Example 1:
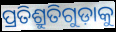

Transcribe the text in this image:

ପ୍ରତିଶ୍ରୁତିଗୁଡ଼ାକୁ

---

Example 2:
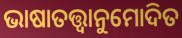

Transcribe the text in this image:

ଭାଷାତତ୍ତ୍ୱାନୁମୋଦିତ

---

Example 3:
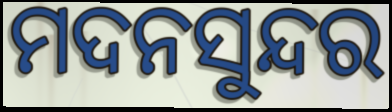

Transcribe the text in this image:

ମଦନସୁନ୍ଦର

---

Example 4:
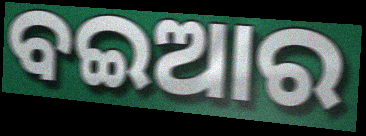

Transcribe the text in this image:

ବଇଆର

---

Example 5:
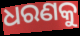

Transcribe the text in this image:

ଧରଣକୁ